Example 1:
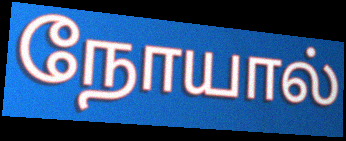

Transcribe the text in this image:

நோயால்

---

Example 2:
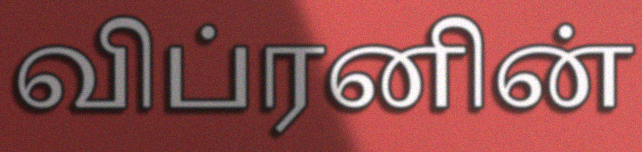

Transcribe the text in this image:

விப்ரனின்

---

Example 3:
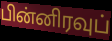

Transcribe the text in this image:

பின்னிரவுப்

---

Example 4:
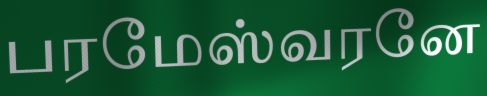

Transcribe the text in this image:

பரமேஸ்வரனே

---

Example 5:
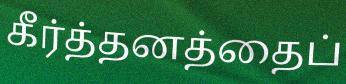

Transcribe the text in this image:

கீர்த்தனத்தைப்